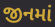
જીનમાં